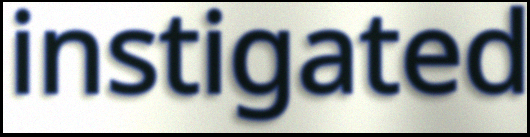
instigated